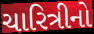
ચારિત્રીનો